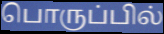
பொருப்பில்